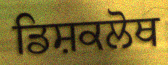
ਡਿਸ਼ਕਲੋਥ